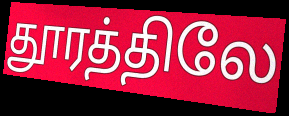
தூரத்திலே